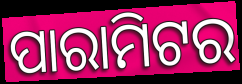
ପାରାମିଟର